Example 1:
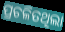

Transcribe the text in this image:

ପ୍ରଚଳିତଥିଲା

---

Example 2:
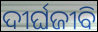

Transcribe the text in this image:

ଦୀର୍ଘଜୀବି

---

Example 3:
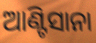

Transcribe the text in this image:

ଆଣ୍ଟିସାନା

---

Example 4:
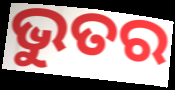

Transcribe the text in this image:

ଭୁତର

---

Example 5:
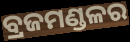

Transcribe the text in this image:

ବ୍ରଜମଣ୍ଡଳର